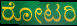
ರೋಟರಿ